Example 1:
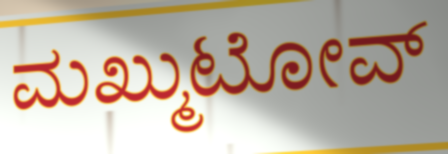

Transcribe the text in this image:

ಮಖ್ಮುಟೋವ್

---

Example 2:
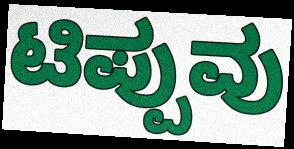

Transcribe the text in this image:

ಟಿಪ್ಪುವು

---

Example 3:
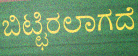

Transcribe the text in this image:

ಬಿಟ್ಟಿರಲಾಗದೆ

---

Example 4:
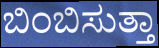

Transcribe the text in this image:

ಬಿಂಬಿಸುತ್ತಾ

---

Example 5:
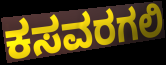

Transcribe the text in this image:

ಕಸವರಗಲಿ